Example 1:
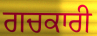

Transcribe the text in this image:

ਗਚਕਾਰੀ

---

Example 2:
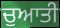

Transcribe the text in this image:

ਚੁਆਤੀ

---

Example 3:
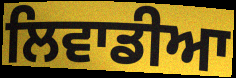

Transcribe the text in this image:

ਲਿਵਾਡੀਆ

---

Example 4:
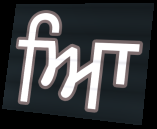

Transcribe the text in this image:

ਆਿ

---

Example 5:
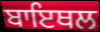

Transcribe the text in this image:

ਬਾਇਥਲ